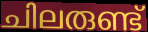
ചിലരുണ്ട്